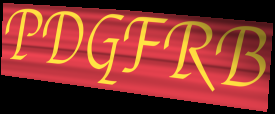
PDGFRB